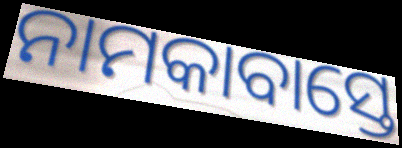
ନାମକାବାସ୍ତେ